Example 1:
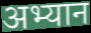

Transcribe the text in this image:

अभ्यान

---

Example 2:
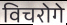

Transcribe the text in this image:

विचरोगे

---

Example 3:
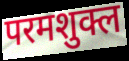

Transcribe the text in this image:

परमशुक्ल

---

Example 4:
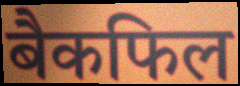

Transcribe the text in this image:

बैकफिल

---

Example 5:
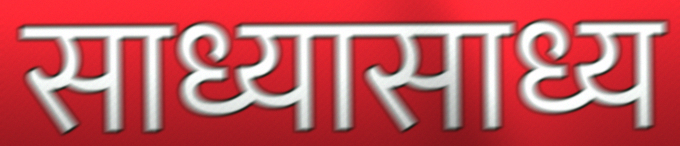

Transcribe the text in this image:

साध्यासाध्य